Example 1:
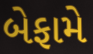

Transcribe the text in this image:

બેફામે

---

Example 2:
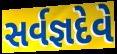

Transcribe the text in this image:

સર્વજ્ઞદેવે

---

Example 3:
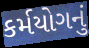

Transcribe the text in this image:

કર્મયોગનું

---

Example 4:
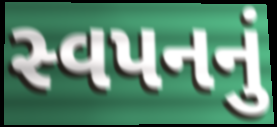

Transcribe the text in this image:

સ્વપનનું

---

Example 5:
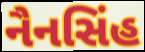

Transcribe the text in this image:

નૈનસિંહ